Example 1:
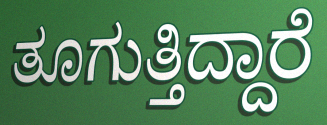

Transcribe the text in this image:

ತೂಗುತ್ತಿದ್ದಾರೆ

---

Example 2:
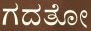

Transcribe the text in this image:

ಗದತೋ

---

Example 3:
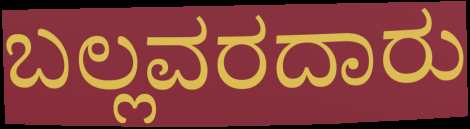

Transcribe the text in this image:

ಬಲ್ಲವರದಾರು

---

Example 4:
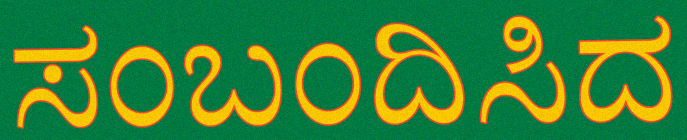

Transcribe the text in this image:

ಸಂಬಂದಿಸಿದ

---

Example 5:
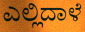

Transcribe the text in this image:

ಎಲ್ಲಿದಾಳೆ